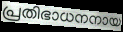
പ്രതിഭാധനനായ